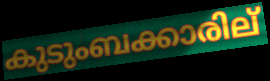
കുടുംബക്കാരില്